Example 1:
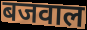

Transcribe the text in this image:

बजवाल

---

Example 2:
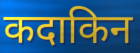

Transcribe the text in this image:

कदाकिन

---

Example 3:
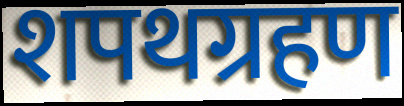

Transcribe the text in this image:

शपथग्रहण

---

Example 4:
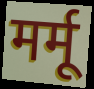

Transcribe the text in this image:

मर्मू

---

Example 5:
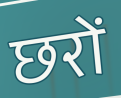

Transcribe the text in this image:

छरों